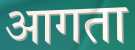
आगता